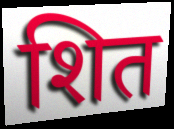
शित